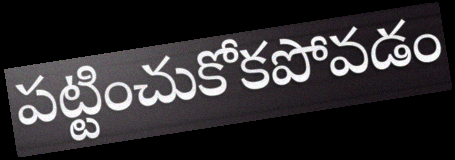
పట్టించుకోకపోవడం